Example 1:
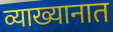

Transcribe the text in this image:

व्याख्यानात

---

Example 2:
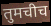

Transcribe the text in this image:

तुमचीच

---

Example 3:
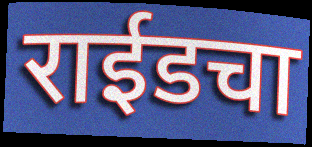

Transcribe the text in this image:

राईडचा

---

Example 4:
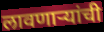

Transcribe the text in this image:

लावणाऱ्यांची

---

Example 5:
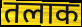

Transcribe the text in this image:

तलाक